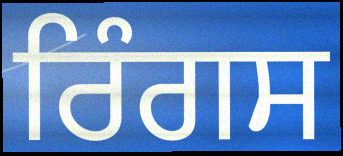
ਰਿੰਗਸ